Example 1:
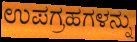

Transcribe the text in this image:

ಉಪಗ್ರಹಗಳನ್ನು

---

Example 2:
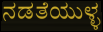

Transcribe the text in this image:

ನಡತೆಯುಳ್ಳ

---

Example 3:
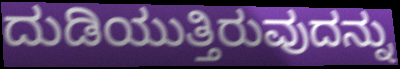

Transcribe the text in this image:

ದುಡಿಯುತ್ತಿರುವುದನ್ನು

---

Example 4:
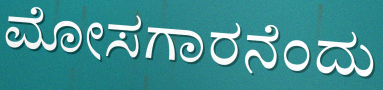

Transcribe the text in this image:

ಮೋಸಗಾರನೆಂದು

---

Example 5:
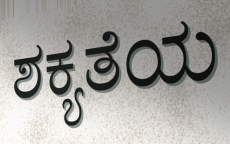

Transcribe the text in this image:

ಶಕ್ಯತೆಯ